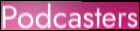
Podcasters